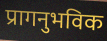
प्रागनुभविक